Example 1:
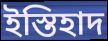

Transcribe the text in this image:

ইস্তিহাদ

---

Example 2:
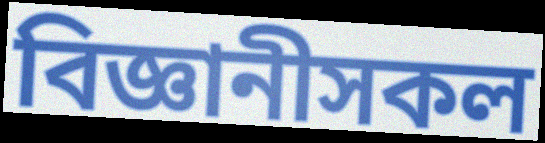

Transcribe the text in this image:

বিজ্ঞানীসকল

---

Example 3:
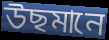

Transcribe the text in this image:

উছমানে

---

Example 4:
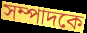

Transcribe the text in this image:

সম্পাদকে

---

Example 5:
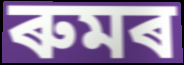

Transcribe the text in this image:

ৰুমৰ